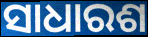
ସାଧାରଶ